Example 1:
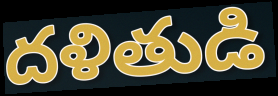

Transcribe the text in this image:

దళితుడి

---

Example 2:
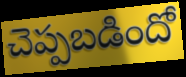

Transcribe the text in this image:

చెప్పబడిందో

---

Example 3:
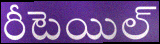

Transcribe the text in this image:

రీటెయిల్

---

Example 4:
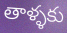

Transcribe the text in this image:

తాళ్ళకు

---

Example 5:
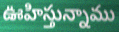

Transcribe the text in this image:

ఊహిస్తున్నాము